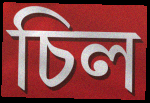
চিল